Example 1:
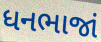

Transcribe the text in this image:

ધનભાજાં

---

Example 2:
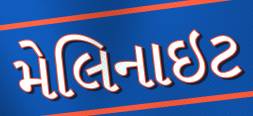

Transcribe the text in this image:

મેલિનાઇટ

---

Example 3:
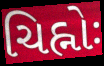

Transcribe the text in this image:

ચિહ્નોઃ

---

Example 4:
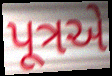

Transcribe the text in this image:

પૂત્રએ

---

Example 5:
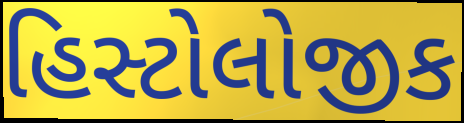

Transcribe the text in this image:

હિસ્ટોલોજીક